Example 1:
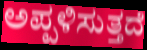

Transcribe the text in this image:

ಅಪ್ಪಳಿಸುತ್ತದೆ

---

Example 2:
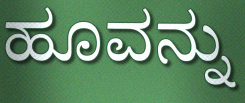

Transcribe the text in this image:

ಹೂವನ್ನು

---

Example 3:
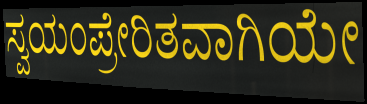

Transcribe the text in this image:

ಸ್ವಯಂಪ್ರೇರಿತವಾಗಿಯೇ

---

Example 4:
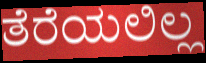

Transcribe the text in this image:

ತೆರೆಯಲಿಲ್ಲ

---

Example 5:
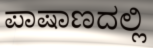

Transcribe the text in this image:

ಪಾಷಾಣದಲ್ಲಿ